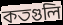
কতগুলি